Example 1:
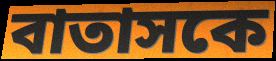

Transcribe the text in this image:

বাতাসকে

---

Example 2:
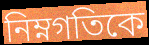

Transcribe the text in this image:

নিম্নগতিকে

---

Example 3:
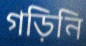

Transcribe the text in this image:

গড়িনি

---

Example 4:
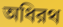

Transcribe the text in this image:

অধিরথ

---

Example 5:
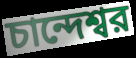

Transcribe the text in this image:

চান্দেশ্বর